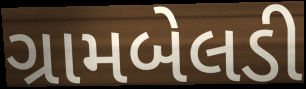
ગ્રામબેલડી